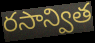
రసాన్విత